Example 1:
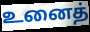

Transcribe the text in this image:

உனைத்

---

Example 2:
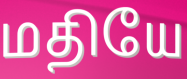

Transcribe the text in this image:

மதியே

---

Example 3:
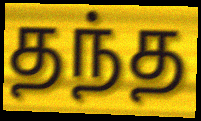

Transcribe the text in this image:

தந்த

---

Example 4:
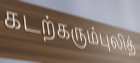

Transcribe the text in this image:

கடற்கரும்புலித்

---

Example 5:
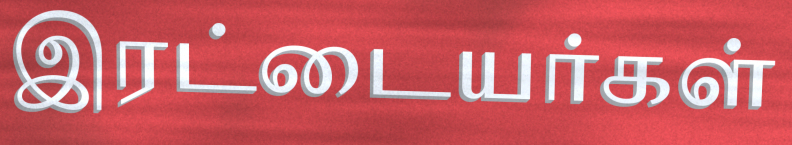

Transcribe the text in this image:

இரட்டையர்கள்